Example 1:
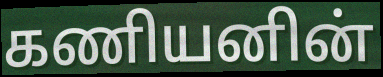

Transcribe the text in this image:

கணியனின்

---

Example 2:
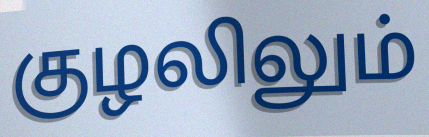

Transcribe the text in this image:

குழலிலும்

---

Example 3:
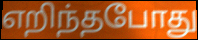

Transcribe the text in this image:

எறிந்தபோது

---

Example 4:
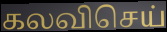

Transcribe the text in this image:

கலவிசெய்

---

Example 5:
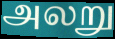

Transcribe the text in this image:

அலறு